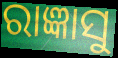
ରାଜ୍ଞାସୁ